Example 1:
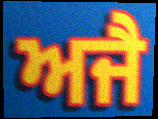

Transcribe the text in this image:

ਅਜੈ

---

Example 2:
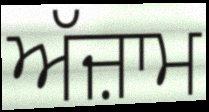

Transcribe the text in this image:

ਅੱਜ਼ਾਮ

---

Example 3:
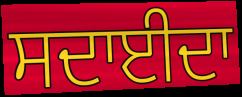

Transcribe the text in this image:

ਸਦਾਈਦਾ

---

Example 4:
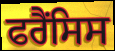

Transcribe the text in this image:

ਫਰੈਂਸਿਸ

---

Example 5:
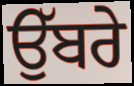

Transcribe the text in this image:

ਉੱਬਰੇ